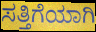
ಸತ್ತಿಗೆಯಾಗಿ